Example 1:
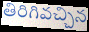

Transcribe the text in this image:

తిరిగివచ్చిన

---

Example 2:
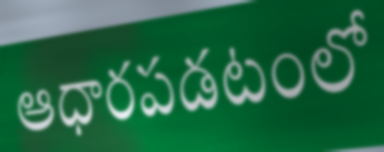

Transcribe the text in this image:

ఆధారపడటంలో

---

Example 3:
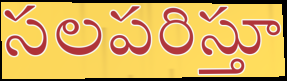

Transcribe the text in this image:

సలపరిస్తూ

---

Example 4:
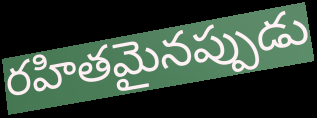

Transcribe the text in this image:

రహితమైనప్పుడు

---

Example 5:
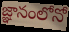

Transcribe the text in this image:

జ్ఞానంలోనో